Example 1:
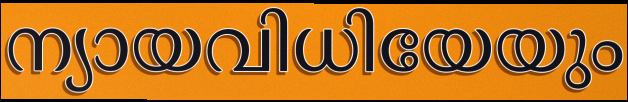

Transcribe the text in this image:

ന്യായവിധിയേയും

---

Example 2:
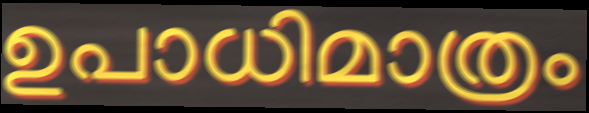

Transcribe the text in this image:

ഉപാധിമാത്രം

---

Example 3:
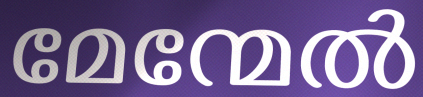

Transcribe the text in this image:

മേന്മേൽ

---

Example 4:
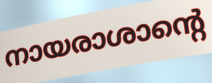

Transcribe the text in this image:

നായരാശാന്റെ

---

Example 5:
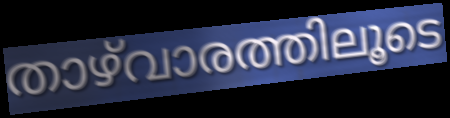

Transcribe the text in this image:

താഴ്‌വാരത്തിലൂടെ